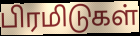
பிரமிடுகள்